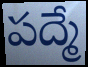
పద్మే